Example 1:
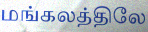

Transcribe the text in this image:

மங்கலத்திலே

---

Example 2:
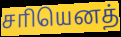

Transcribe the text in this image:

சரியெனத்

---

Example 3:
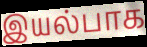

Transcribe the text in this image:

இயல்பாக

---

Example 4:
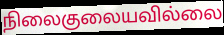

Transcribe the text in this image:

நிலைகுலையவில்லை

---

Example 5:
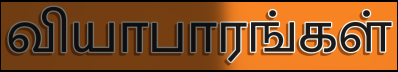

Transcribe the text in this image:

வியாபாரங்கள்